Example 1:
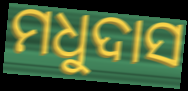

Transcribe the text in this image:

ମଧୁଦାସ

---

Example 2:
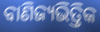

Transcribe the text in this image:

ବାଣିଜ୍ୟଭିତ୍ତିକ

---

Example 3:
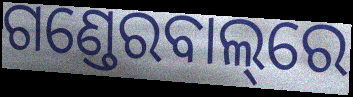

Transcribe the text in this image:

ଗଣ୍ଡେରବାଲ୍‌ରେ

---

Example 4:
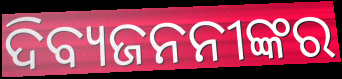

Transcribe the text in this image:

ଦିବ୍ୟଜନନୀଙ୍କର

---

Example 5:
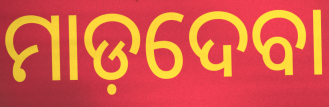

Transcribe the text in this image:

ମାଡ଼ଦେବା